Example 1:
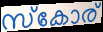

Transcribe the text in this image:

സ്കോര്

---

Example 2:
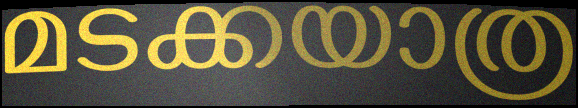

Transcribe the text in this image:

മടക്കയാത്ര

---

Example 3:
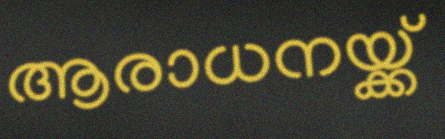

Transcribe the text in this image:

ആരാധനയ്ക്ക്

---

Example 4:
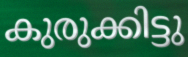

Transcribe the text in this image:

കുരുക്കിട്ടു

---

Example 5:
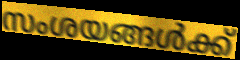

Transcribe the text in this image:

സംശയങ്ങൾക്ക്